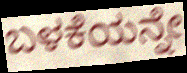
ಬಳಕೆಯನ್ನೇ